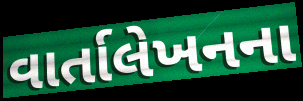
વાર્તાલેખનના